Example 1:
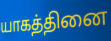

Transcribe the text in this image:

யாகத்தினை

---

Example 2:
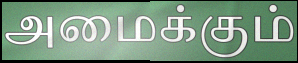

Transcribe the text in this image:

அமைக்கும்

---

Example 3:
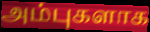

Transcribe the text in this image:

அம்புகளாக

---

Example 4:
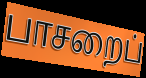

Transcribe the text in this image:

பாசறைப்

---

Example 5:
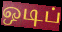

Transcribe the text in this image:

ஒடிப்